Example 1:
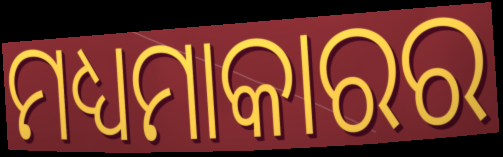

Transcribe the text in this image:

ମଧ୍ୟମାକାରର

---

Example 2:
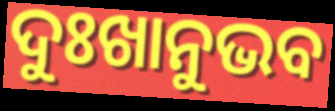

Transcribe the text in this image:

ଦୁଃଖାନୁଭବ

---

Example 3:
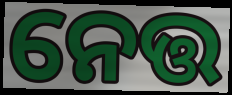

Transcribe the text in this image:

ନେତ୍ତ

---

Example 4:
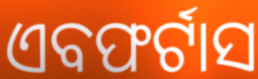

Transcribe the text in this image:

ଏବଫର୍ଟାସ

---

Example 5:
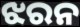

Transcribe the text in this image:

ଝରନ